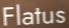
Flatus